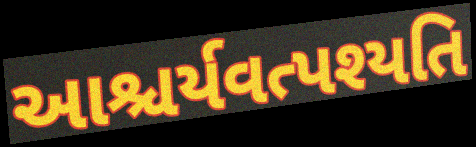
આશ્ચર્યવત્પશ્યતિ